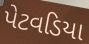
પેટવડિયા